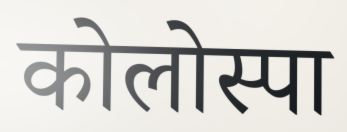
कोलोस्पा